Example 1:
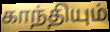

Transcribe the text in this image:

காந்தியும்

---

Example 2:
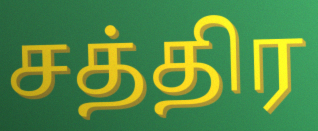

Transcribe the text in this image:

சத்திர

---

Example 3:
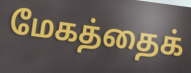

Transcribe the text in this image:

மேகத்தைக்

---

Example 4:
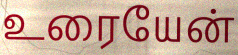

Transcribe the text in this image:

உரையேன்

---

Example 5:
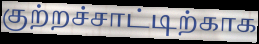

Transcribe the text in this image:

குற்றச்சாட்டிற்காக